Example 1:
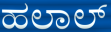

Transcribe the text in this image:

ಹಲಾಲ್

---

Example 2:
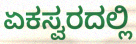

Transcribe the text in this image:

ಏಕಸ್ವರದಲ್ಲಿ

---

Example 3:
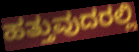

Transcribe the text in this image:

ಹತ್ತುವುದರಲ್ಲಿ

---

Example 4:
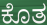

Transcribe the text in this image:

ಕೊತ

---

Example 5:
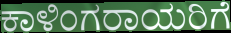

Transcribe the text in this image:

ಕಾಳಿಂಗರಾಯರಿಗೆ